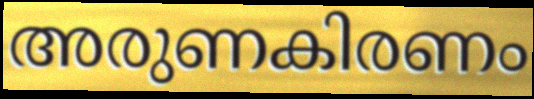
അരുണകിരണം